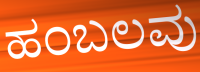
ಹಂಬಲವು